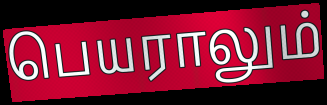
பெயராலும்